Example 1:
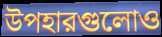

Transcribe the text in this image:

উপহারগুলোও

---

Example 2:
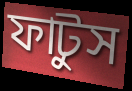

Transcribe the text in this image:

ফাটুস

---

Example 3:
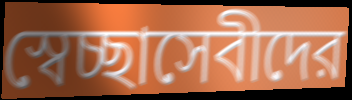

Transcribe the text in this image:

স্বেচ্ছাসেবীদের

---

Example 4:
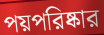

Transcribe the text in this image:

পয়পরিষ্কার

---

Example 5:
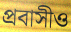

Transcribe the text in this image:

প্রবাসীও